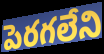
పెరగలేని